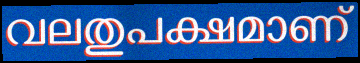
വലതുപക്ഷമാണ്